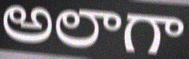
అలాగా